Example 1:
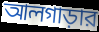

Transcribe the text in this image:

আলগাড়ার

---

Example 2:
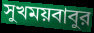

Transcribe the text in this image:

সুখময়বাবুর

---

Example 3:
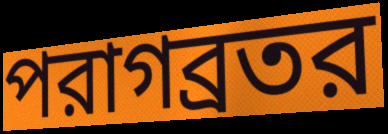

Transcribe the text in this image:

পরাগব্রতর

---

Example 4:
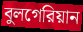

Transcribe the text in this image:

বুলগেরিয়ান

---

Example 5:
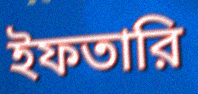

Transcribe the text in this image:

ইফতারি